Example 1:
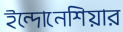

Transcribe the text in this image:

ইন্দোনেশিয়ার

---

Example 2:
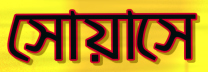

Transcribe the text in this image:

সোয়াসে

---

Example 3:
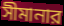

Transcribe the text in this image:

সীমানার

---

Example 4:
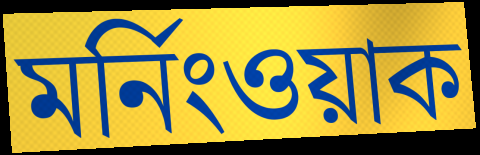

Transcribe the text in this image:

মর্নিংওয়াক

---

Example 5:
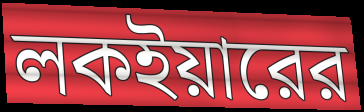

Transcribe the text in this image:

লকইয়ারের